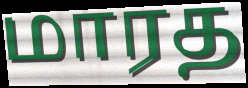
மாரத